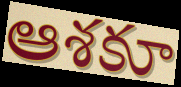
ఆశకూ